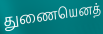
துணையெனத்